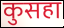
कुसहा